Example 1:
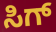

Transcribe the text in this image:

ಸಿಗ್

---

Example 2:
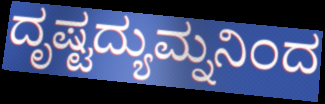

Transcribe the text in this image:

ದೃಷ್ಟದ್ಯುಮ್ನನಿಂದ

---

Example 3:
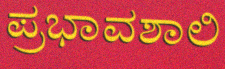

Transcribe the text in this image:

ಪ್ರಭಾವಶಾಲಿ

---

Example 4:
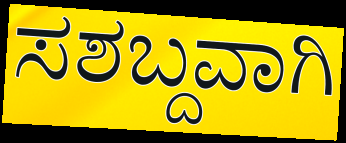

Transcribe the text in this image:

ಸಶಬ್ದವಾಗಿ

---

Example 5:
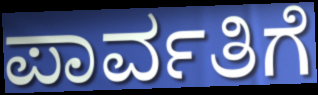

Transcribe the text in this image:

ಪಾರ್ವತಿಗೆ